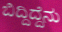
ಬಿದ್ದಿದ್ದೆನು